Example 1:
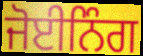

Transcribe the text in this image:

ਜੋਈਨਿੰਗ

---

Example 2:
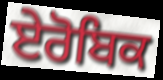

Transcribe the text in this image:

ਏਰੋਬਿਕ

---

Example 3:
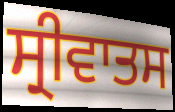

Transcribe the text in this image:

ਸ੍ਰੀਵਾਤਸ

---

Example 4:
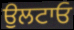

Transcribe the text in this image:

ਉਲਟਾਓ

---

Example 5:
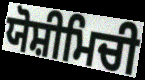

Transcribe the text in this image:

ਯੋਸ਼ੀਮਿਚੀ